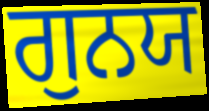
ਗੁਨਯ